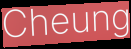
Cheung